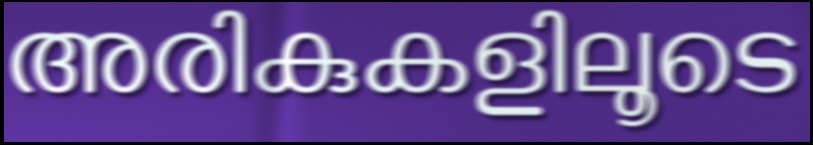
അരികുകളിലൂടെ